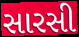
સારસી